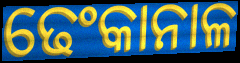
ଢେଂକାନାଳ